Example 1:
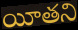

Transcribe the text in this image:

యీతని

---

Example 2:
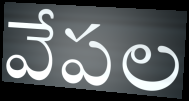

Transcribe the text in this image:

వేపల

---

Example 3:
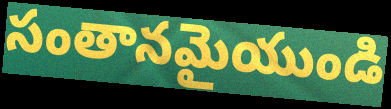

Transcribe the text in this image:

సంతానమైయుండి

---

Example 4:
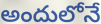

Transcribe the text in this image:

అందులోనే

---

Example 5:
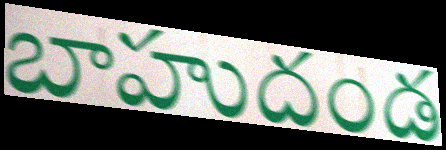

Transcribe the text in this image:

బాహుదండ